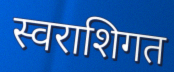
स्वराशिगत